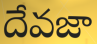
దేవజా